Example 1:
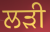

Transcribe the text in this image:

ਲਡ਼ੀ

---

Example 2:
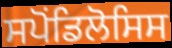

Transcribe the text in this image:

ਸਪੋਂਡਿਲੋਸਿਸ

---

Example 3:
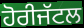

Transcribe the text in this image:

ਹੋਰੀਜੱਟਲ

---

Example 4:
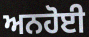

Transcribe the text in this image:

ਅਨਹੋਈ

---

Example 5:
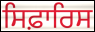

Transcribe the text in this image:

ਸਿਫ਼ਾਰਿਸ